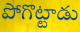
పోగొట్టాడు